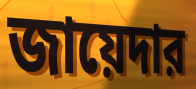
জায়েদার